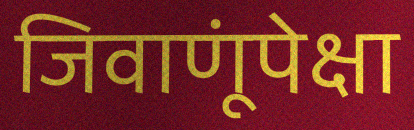
जिवाणूंपेक्षा